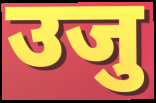
उजु